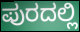
ಪುರದಲ್ಲಿ